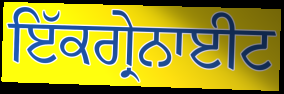
ਇੱਕਗ੍ਰੇਨਾਈਟ